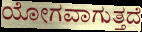
ಯೋಗವಾಗುತ್ತದೆ